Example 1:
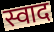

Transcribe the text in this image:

स्‍वाद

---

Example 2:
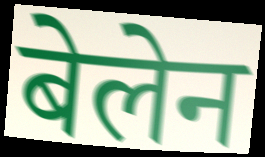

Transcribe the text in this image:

बेलेन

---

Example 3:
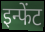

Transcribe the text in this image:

इन्फेंट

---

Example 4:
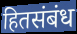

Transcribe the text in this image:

हितसंबंध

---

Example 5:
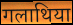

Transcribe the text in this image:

गलाथिया